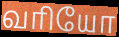
வரியோ